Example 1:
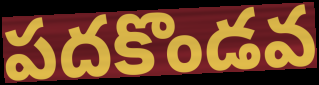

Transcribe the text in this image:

పదకొండవ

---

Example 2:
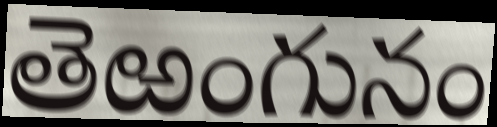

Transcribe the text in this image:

తెఱంగునం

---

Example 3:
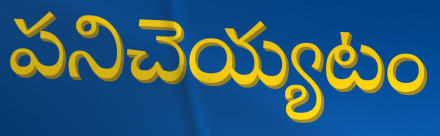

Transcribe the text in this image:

పనిచెయ్యటం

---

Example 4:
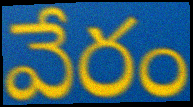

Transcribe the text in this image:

వేరం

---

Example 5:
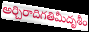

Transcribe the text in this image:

అర్చిరాదిగతిమీదృశీం